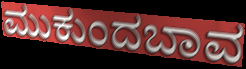
ಮುಕುಂದಬಾವ